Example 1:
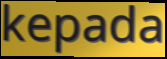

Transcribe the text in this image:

kepada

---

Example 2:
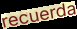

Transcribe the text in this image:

recuerda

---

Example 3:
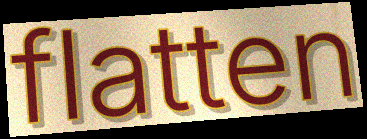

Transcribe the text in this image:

flatten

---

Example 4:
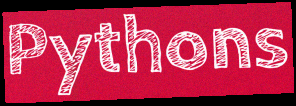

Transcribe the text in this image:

Pythons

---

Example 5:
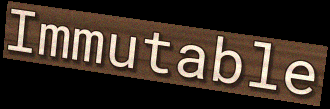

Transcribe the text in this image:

Immutable